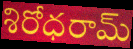
శిరోధరామ్